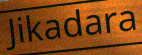
Jikadara